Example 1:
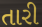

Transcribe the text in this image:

તારી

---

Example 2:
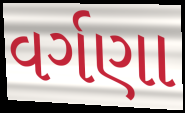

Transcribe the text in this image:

વર્ગણા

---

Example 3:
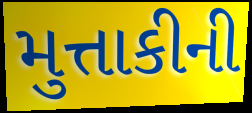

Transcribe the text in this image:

મુત્તાકીની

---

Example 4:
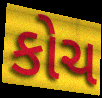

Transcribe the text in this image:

કોચ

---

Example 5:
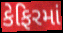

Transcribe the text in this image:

કેફિરમાં